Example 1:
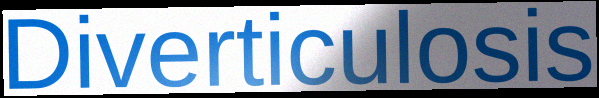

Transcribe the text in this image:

Diverticulosis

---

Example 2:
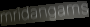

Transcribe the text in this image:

mridangams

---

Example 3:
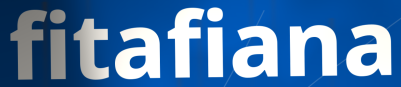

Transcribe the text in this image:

fitafiana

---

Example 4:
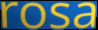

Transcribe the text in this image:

rosa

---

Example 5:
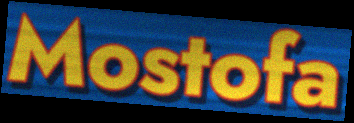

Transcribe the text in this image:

Mostofa